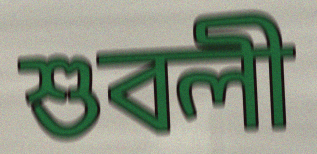
শুবলী